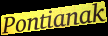
Pontianak